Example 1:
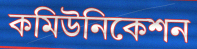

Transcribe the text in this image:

কমিউনিকেশন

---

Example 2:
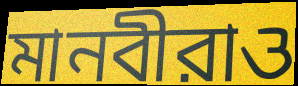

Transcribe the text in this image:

মানবীরাও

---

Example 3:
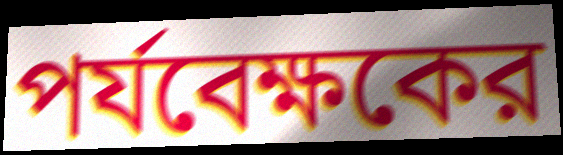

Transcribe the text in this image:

পর্যবেক্ষকের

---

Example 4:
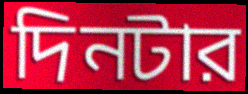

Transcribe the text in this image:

দিনটার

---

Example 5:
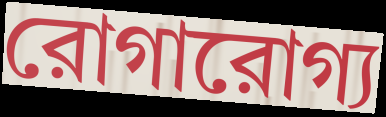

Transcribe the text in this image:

রোগারোগ্য